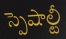
స్పెషాల్టీ